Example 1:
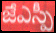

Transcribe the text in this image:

జేఎస్పీ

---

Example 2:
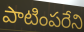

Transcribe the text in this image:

పాటింపరేని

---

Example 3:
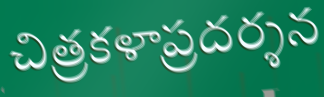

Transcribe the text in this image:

చిత్రకళాప్రదర్శన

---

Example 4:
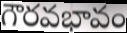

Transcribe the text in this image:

గౌరవభావం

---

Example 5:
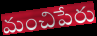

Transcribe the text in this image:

మంచిపేరు